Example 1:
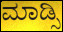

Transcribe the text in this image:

ಮಾಡ್ಸಿ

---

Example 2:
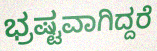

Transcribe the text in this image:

ಭ್ರಷ್ಟವಾಗಿದ್ದರೆ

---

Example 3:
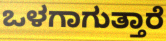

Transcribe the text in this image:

ಒಳಗಾಗುತ್ತಾರೆ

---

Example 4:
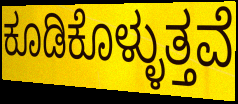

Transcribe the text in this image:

ಕೂಡಿಕೊಳ್ಳುತ್ತವೆ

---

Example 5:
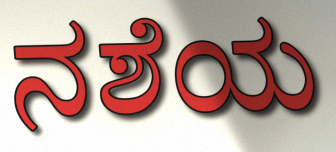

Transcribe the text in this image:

ನಶೆಯ